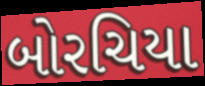
બોરચિયા